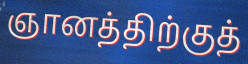
ஞானத்திற்குத்